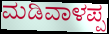
ಮಡಿವಾಳಪ್ಪ